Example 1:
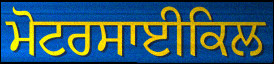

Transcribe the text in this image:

ਮੋਟਰਸਾਈਕਿਲ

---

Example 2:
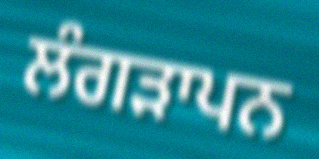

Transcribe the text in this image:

ਲੰਗੜਾਪਨ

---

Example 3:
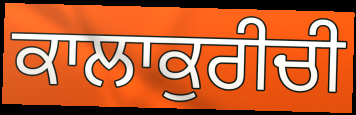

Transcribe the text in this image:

ਕਾਲਾਕੁਰੀਚੀ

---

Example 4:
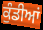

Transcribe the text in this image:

ਕੁੰਡੀਆਂ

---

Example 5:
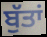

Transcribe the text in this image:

ਬੁੱਤਾਂ